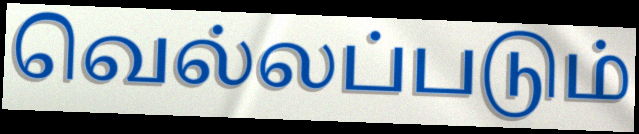
வெல்லப்படும்